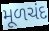
મૂળચંદ